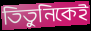
তিতুনিকেই